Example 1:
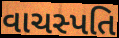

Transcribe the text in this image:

વાચસ્પતિ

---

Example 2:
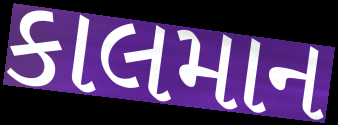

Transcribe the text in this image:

કાલમાન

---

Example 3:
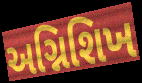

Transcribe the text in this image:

અગ્નિશિખ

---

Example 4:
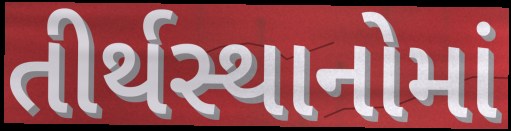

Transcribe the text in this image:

તીર્થસ્થાનોમાં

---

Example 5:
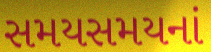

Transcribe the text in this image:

સમયસમયનાં